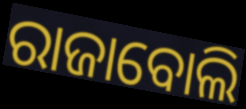
ରାଜାବୋଲି